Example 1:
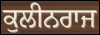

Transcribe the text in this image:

ਕੁਲੀਨਰਾਜ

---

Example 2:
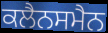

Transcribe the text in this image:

ਕਲੈਨਸਮੈਨ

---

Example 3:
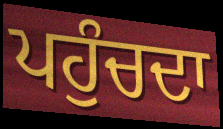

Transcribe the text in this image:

ਪਹੁੰਚਦਾ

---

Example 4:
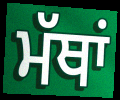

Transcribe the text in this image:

ਮੱਥਾਂ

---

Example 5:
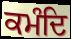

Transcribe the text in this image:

ਕਮੰਦਿ